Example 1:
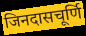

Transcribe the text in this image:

जिनदासचूर्णि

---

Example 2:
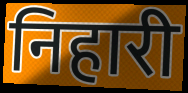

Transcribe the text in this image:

निहारी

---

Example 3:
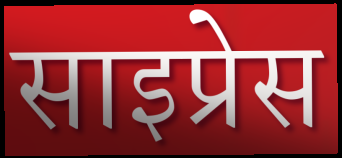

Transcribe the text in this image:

साइप्रेस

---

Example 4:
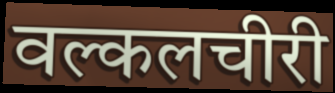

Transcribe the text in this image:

वल्कलचीरी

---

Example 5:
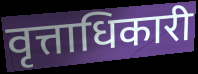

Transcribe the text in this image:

वृत्ताधिकारी